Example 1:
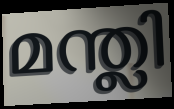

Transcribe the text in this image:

മന്ത്ലി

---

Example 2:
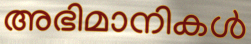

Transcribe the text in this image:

അഭിമാനികൾ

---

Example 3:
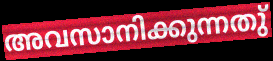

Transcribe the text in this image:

അവസാനിക്കുന്നതു്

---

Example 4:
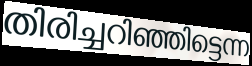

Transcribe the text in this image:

തിരിച്ചറിഞ്ഞിട്ടെന്ന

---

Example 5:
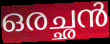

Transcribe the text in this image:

ഒരച്ഛൻ